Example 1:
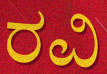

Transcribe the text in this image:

ರವಿ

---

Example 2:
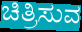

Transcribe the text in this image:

ಚಿತ್ರಿಸುವ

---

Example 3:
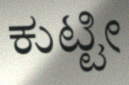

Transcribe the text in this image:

ಕುಟ್ಟೀ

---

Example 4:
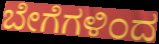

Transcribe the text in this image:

ಬೇಗೆಗಳಿಂದ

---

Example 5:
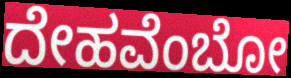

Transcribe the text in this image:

ದೇಹವೆಂಬೋ